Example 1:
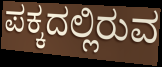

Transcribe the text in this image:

ಪಕ್ಕದಲ್ಲಿರುವ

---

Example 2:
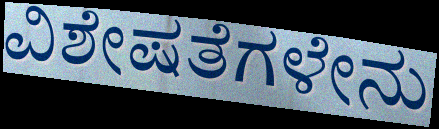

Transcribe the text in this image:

ವಿಶೇಷತೆಗಳೇನು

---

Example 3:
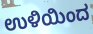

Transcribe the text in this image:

ಉಳಿಯಿಂದ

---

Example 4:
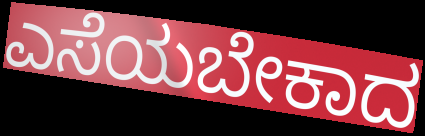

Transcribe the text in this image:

ಎಸೆಯಬೇಕಾದ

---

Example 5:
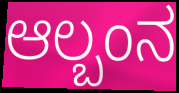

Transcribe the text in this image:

ಆಲ್ಬಂನ